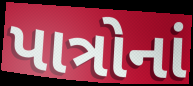
પાત્રોનાં